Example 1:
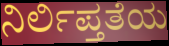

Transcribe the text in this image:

ನಿರ್ಲಿಪ್ತತೆಯ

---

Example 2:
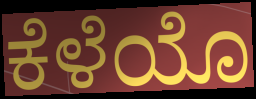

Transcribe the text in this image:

ಕೆಳೆಯೊ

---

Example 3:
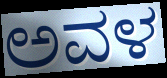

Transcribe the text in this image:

ಅವಳ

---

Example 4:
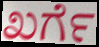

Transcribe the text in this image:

ಖರ್ಗೆ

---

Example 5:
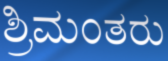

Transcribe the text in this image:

ಶ್ರಿಮಂತರು